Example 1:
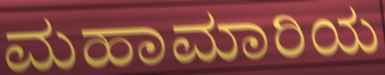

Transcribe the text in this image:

ಮಹಾಮಾರಿಯ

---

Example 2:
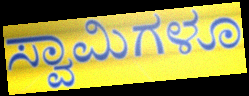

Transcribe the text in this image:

ಸ್ವಾಮಿಗಳೂ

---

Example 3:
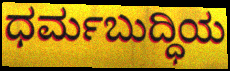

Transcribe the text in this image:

ಧರ್ಮಬುದ್ಧಿಯ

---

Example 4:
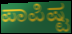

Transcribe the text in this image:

ಪಾಪಿಷ್ಟ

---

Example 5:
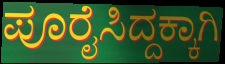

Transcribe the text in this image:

ಪೂರೈಸಿದ್ದಕ್ಕಾಗಿ